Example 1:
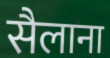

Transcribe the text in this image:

सैलाना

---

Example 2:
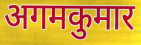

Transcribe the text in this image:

अगमकुमार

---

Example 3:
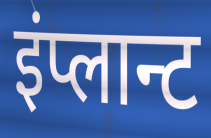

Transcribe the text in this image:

इंप्लान्ट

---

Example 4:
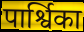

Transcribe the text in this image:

पार्श्विका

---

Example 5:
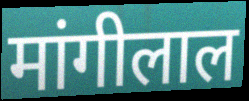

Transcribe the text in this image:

मांगीलाल